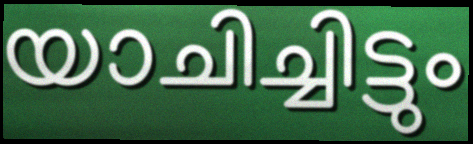
യാചിച്ചിട്ടും